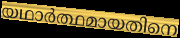
യഥാർത്ഥമായതിനെ